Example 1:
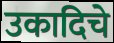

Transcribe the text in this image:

उकादिचे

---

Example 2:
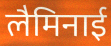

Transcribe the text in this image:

लैमिनाई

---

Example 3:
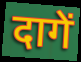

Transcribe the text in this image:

दागें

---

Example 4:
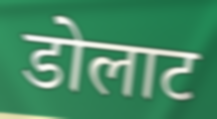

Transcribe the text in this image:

डोलाट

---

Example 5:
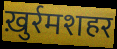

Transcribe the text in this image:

ख़ुर्रमशहर